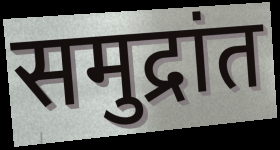
समुद्रांत